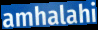
amhalahi